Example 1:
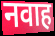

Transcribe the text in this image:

नवाह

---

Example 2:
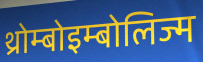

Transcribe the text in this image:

थ्रोम्बोइम्बोलिज्म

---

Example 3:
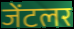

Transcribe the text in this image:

जेंटलर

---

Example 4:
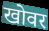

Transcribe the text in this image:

खोवर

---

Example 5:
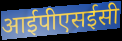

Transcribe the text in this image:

आईपीएसईसी